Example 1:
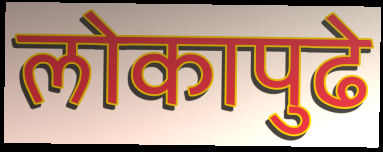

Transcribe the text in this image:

लोकापुढे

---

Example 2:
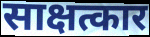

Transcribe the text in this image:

साक्षत्कार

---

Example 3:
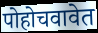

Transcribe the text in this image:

पोहोचवावेत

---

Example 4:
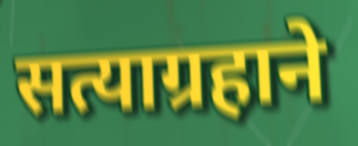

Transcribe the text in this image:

सत्याग्रहाने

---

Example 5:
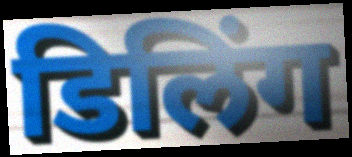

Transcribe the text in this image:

डिलिंग